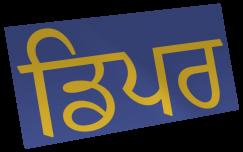
ਡਿਪਰ